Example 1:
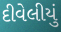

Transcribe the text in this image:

દીવેલીયું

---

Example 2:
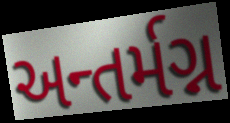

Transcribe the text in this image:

અન્તર્મગ્ન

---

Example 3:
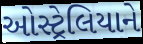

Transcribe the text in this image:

ઓસ્ટ્રેલિયાને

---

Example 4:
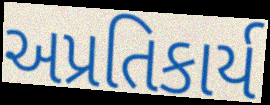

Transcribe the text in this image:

અપ્રતિકાર્ય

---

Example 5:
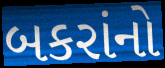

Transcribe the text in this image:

બકરાંનો